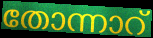
തോന്നാറ്